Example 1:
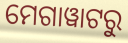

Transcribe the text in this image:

ମେଗାୱାଟରୁ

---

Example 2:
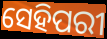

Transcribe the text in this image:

ସେହିପରୀ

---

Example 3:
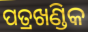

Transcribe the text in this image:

ପତ୍ରଖଣ୍ଡିକ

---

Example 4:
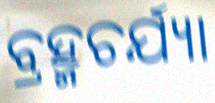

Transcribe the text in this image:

ବ୍ରହ୍ମଚର୍ଯ୍ୟା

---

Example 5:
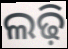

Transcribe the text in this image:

ଲଢ଼ି